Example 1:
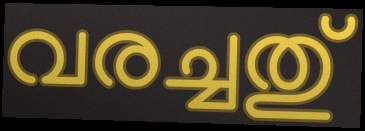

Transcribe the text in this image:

വരച്ചതു്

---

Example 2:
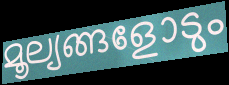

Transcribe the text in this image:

മൂല്യങ്ങളോടും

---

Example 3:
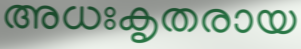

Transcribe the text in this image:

അധഃകൃതരായ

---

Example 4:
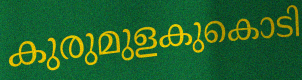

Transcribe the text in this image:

കുരുമുളകുകൊടി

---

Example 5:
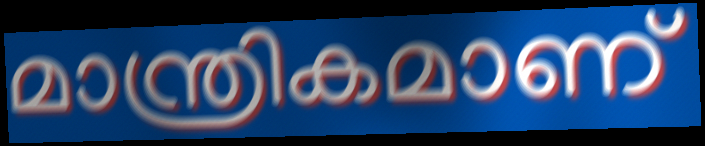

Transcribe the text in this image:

മാന്ത്രികമാണ്